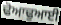
ਢੋਆਢੁਆਈ